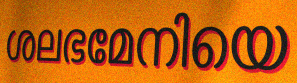
ശലഭമേനിയെ